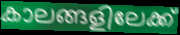
കാലങ്ങളിലേക്ക്